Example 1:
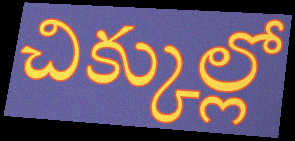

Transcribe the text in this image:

చిక్కుల్లో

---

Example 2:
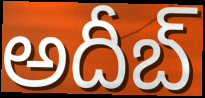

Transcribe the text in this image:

అదీబ్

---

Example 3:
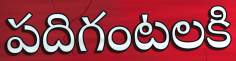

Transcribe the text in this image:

పదిగంటలకి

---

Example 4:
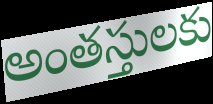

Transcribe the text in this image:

అంతస్తులకు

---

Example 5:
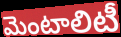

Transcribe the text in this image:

మెంటాలిటీ